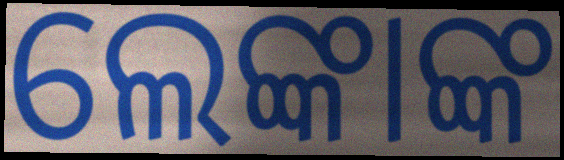
ଲେଙ୍କାଙ୍କ